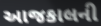
આજકાલની